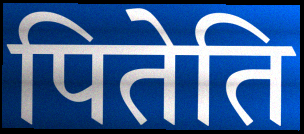
पितेति